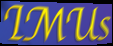
IMUs